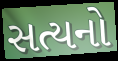
સત્યનો